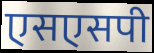
एसएसपी